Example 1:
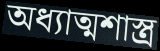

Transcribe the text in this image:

অধ্যাত্মশাস্ত্র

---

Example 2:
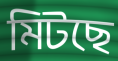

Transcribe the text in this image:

মিটছে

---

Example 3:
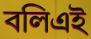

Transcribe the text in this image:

বলিএই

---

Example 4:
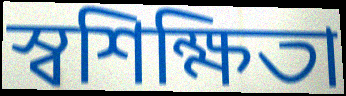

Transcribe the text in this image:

স্বশিক্ষিতা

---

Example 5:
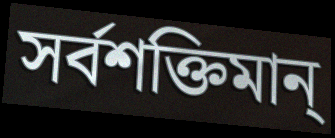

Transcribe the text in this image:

সর্বশক্তিমান্